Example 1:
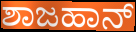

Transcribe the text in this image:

ಶಾಜಹಾನ್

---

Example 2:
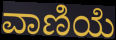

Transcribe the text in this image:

ವಾಣಿಯೆ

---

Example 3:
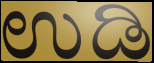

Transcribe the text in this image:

ಉಡಿ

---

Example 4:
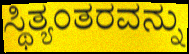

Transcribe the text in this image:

ಸ್ಥಿತ್ಯಂತರವನ್ನು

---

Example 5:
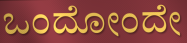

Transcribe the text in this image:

ಒಂದೋಂದೇ